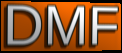
DMF